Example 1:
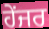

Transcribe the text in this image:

ਹੇਂਜਰ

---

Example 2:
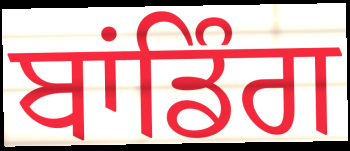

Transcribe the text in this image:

ਬਾਂਡਿੰਗ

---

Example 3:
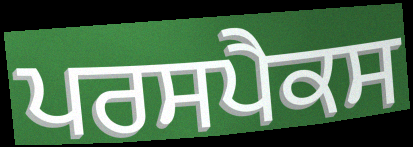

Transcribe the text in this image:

ਪਰਸਪੈਕਸ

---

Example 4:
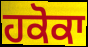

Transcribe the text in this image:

ਹਕੋਕਾ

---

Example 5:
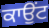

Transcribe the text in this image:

ਕਾਉਂਟ